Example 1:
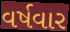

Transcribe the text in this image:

વર્ષવાર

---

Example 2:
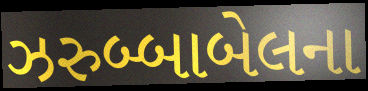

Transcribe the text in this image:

ઝરુબ્બાબેલના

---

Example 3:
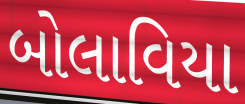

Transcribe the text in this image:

બોલાવિયા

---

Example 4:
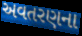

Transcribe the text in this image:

અવતરણના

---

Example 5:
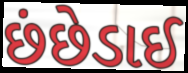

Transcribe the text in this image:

છંછેડાઈ